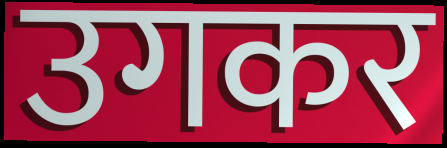
उगकर